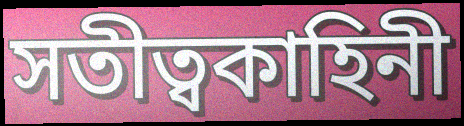
সতীত্বকাহিনী